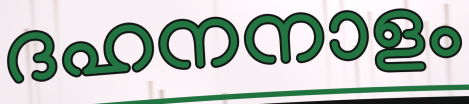
ദഹനനാളം